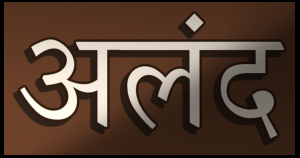
अलंद